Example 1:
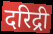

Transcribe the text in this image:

दरिद्री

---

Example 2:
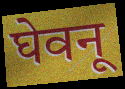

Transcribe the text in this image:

घेवनू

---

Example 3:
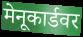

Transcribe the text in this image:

मेनूकार्डवर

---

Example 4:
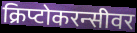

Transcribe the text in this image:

क्रिप्टोकरन्सीवर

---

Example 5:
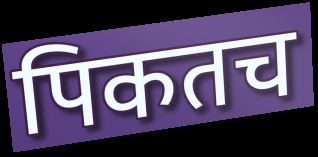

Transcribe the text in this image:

पिकतच